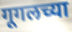
गूगलच्या